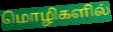
மொழிகளில்